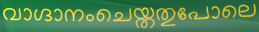
വാഗ്ദാനംചെയ്തതുപോലെ